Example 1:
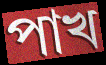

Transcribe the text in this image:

পাখ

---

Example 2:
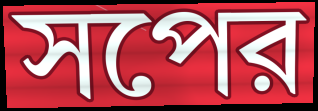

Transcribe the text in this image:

সপের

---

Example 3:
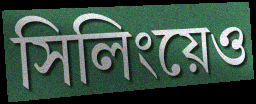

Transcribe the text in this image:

সিলিংয়েও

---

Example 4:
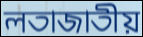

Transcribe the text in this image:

লতাজাতীয়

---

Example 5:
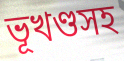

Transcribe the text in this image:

ভূখণ্ডসহ